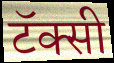
टॅक्सी